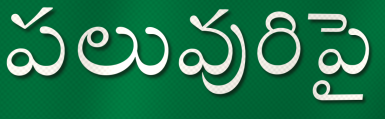
పలువురిపై